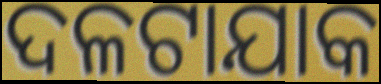
ଦଳଟାଯାକ